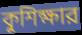
কুশিক্ষার